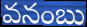
వనంబు